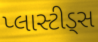
પ્લાસ્ટીડ્સ